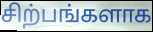
சிற்பங்களாக